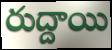
రుద్దాయి